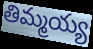
తిమ్మయ్య